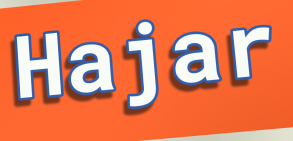
Hajar